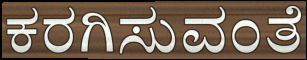
ಕರಗಿಸುವಂತೆ